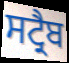
ਸਟ੍ਰੈਬ